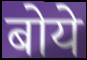
बोये